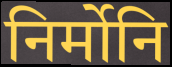
निर्मोनि